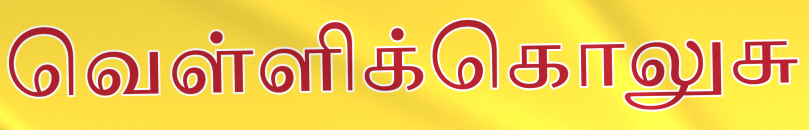
வெள்ளிக்கொலுசு